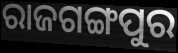
ରାଜଗଙ୍ଗପୁର